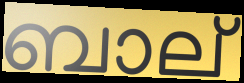
ബാല്